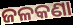
ଜଳକଣା